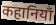
कहानियाँ